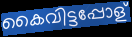
കൈവിട്ടപ്പോള്